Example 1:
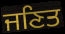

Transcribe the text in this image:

ਜਣਿਤ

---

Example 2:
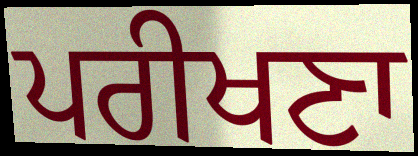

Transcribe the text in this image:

ਪਰੀਖਣਾ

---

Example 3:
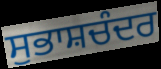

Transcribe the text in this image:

ਸੁਭਾਸ਼ਚੰਦਰ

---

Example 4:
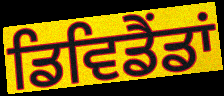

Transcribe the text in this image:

ਡਿਵਿਡੈਂਡਾਂ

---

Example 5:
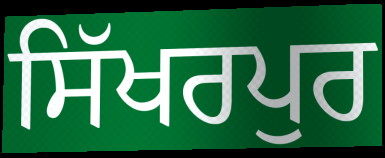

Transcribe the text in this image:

ਸਿੱਖਰਪੁਰ